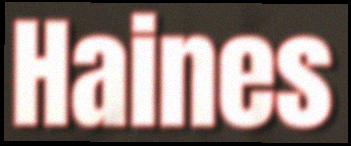
Haines